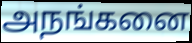
அநங்கனை